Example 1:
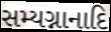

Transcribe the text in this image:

સમ્યગ્નાનાદિ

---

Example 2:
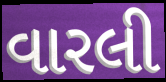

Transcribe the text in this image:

વારલી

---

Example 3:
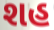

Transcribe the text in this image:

શહ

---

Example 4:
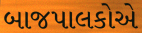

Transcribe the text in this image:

બાજપાલકોએ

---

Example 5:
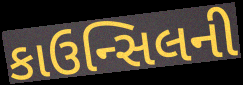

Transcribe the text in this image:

કાઉન્સિલની